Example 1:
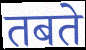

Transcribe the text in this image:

तबते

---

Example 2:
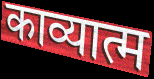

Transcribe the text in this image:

काव्यात्म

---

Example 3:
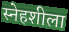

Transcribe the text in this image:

स्नेहशीला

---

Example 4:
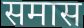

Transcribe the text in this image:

समास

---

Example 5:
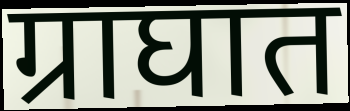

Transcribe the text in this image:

ग्राघात